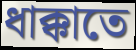
ধাক্কাতে